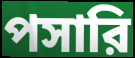
পসারি